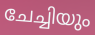
ചേച്ചിയും